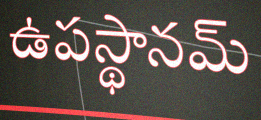
ఉపస్థానమ్